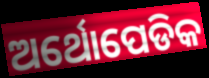
ଅର୍ଥୋପେଡିକ